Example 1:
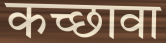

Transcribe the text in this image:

कच्छावा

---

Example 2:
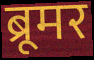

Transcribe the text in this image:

ब्रूमर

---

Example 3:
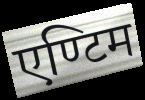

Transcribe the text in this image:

एण्टिम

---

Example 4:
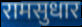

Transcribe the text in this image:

रामसुधार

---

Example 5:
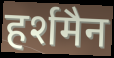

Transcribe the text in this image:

हर्शमैन